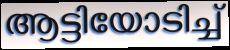
ആട്ടിയോടിച്ച്